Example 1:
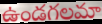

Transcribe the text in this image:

ఉండగలమా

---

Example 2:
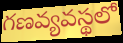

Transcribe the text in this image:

గణవ్యవస్థలో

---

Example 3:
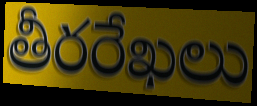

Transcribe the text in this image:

తీరరేఖలు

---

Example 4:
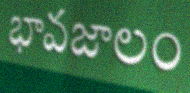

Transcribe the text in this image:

భావజాలం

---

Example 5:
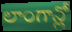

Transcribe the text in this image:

లాంగాన్లో